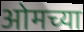
ओमच्या